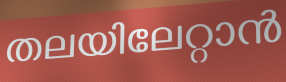
തലയിലേറ്റാൻ